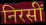
निरसीं